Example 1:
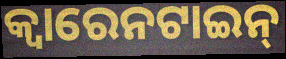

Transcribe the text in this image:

କ୍ୱାରେନଟାଇନ୍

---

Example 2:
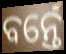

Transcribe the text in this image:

ବର୍ନ୍ତେ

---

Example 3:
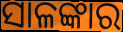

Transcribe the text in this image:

ସାଳଙ୍କାର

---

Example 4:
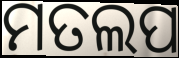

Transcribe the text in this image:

ମତଲପ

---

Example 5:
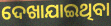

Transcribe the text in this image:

ଦେଖାଯାଇଥିବା